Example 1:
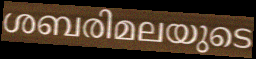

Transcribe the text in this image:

ശബരിമലയുടെ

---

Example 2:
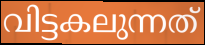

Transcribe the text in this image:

വിട്ടകലുന്നത്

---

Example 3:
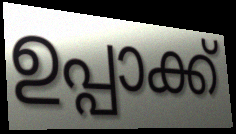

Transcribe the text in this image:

ഉപ്പാക്ക്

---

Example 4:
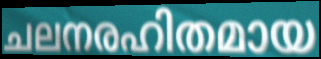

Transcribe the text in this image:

ചലനരഹിതമായ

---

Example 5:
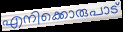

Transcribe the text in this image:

എനിക്കൊരുപാട്